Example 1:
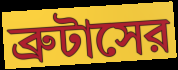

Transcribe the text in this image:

ব্রুটাসের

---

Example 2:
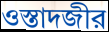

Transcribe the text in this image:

ওস্তাদজীর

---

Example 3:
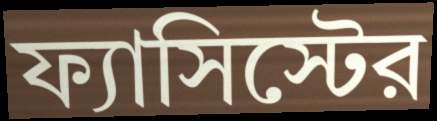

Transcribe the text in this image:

ফ্যাসিস্টের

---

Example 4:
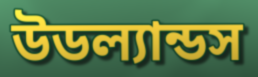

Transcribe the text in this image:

উডল্যান্ডস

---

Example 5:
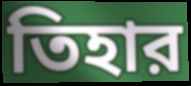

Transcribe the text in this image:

তিহার